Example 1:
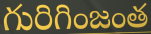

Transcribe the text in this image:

గురిగింజంత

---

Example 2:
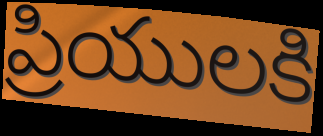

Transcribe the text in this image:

ప్రియులకి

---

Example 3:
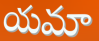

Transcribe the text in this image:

యమా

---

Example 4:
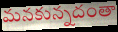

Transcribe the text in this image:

మనకున్నదంతా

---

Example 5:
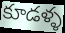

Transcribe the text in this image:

కూడళ్ళ